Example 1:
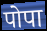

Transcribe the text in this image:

पोपा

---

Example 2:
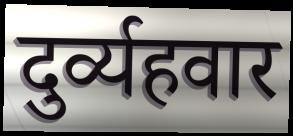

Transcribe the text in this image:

दुर्व्यहवार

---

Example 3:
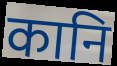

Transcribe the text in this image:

कानि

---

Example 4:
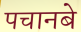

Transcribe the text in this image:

पचानबे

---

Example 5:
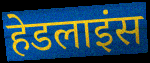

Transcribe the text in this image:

हेडलाइंस